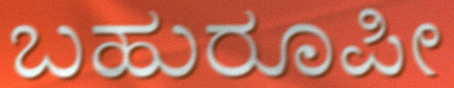
ಬಹುರೂಪೀ